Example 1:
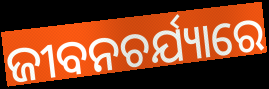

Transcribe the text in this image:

ଜୀବନଚର୍ଯ୍ୟାରେ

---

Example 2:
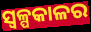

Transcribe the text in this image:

ସ୍ୱଳ୍ପକାଳର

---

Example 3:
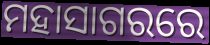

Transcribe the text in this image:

ମହାସାଗରରେ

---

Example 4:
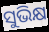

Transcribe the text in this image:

ସୁଭିକ୍ଷ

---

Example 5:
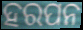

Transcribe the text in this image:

ହରପନ